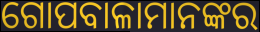
ଗୋପବାଳାମାନଙ୍କର